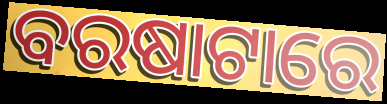
ବରଷାଟାରେ